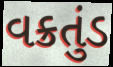
વક્રતુંડ